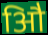
औि